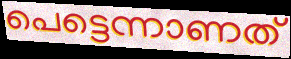
പെട്ടെന്നാണത്